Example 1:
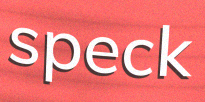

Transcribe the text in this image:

speck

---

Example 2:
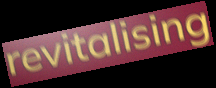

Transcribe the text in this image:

revitalising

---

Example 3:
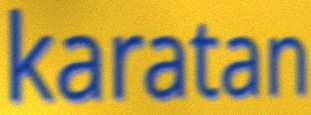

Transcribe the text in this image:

karatan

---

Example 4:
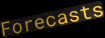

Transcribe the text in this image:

Forecasts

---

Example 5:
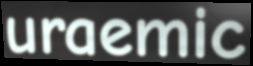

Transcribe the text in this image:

uraemic